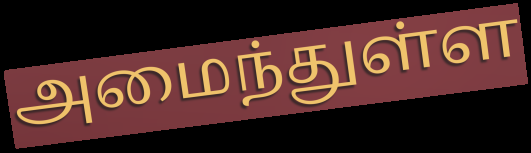
அமைந்துள்ள